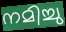
നമിച്ചു